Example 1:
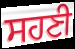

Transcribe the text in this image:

ਸਹਣੀ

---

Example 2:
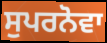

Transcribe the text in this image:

ਸੁਪਰਨੋਵਾ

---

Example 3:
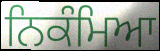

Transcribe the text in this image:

ਨਿਕੰਮਿਆ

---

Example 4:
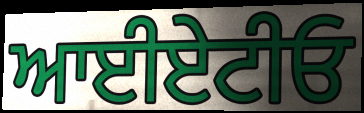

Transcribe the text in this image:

ਆਈਏਟੀਓ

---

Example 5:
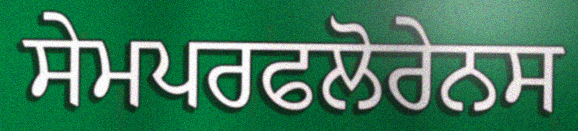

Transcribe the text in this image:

ਸੇਮਪਰਫਲੋਰੇਨਸ